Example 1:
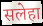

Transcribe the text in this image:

सलेहा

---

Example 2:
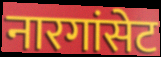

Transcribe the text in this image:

नारगांसेट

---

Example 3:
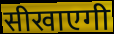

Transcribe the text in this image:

सीखाएगी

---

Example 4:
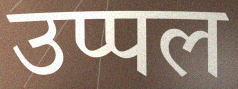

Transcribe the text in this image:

उप्पल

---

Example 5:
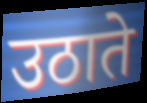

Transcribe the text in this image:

उठाते